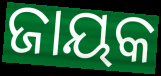
ଜାୟକ